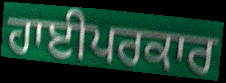
ਹਾਈਪਰਕਾਰ